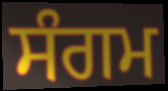
ਸੰਗਮ